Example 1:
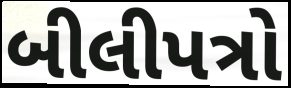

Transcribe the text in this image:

બીલીપત્રો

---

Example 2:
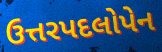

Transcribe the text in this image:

ઉત્તરપદલોપેન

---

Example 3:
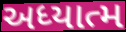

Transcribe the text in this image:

અધ્યાત્મ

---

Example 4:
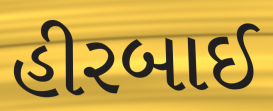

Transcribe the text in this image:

હીરબાઈ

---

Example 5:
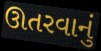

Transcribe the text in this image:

ઊતરવાનું